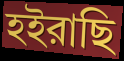
হইরাছি